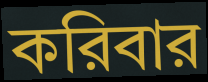
করিবার